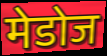
मेडोज